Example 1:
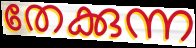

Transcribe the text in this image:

തേക്കുന്ന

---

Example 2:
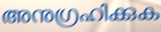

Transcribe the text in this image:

അനുഗ്രഹിക്കുക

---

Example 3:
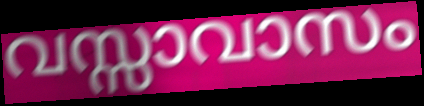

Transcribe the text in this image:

വസ്സാവാസം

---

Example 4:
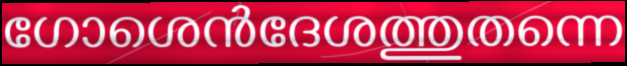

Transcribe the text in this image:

ഗോശെൻദേശത്തുതന്നെ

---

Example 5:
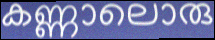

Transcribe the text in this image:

കണ്ണാലൊരു